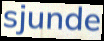
sjunde